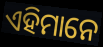
ଏହିମାନେ